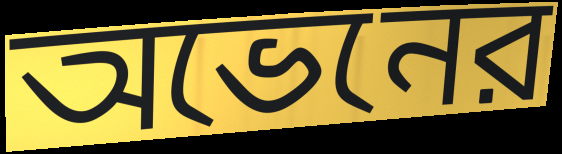
অভেনের